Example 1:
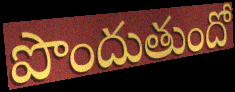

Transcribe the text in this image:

పొందుతుందో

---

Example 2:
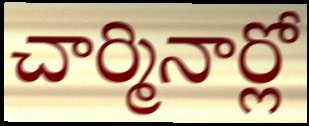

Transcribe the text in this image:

చార్మినార్లో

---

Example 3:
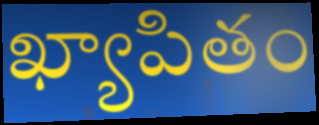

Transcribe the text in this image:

ఖ్యాపితం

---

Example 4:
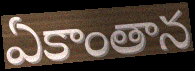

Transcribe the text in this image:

ఏకాంతాన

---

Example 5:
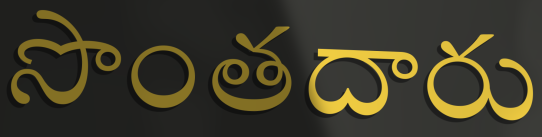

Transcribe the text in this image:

సొంతదారు